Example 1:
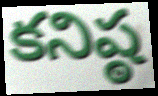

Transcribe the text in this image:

కనిష్ఠ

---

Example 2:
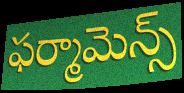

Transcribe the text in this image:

ఫర్మామెన్స్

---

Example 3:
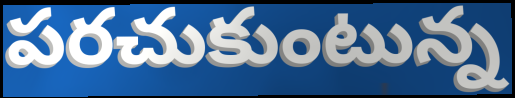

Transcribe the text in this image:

పరచుకుంటున్న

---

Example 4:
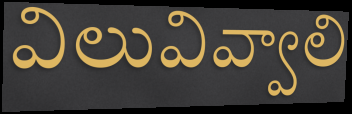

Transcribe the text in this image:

విలువివ్వాలి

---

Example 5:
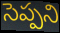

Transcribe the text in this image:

సెప్పని